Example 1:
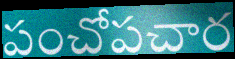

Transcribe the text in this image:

పంచోపచార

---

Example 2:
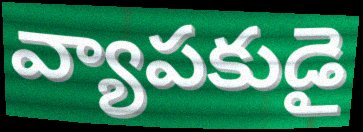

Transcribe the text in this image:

వ్యాపకుడై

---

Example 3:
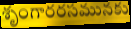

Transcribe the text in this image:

శృంగారరసమునకు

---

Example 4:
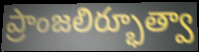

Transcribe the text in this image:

ప్రాంజలిర్భూత్వా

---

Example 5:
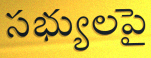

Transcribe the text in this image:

సభ్యులపై